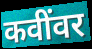
कवींवर